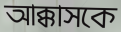
আক্কাসকে